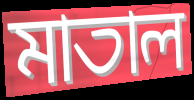
মাতাল